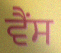
ਵੈਂਸ